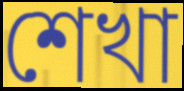
শেখা